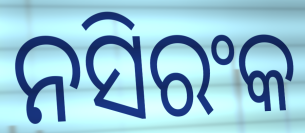
ନସିରଂକ